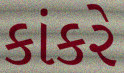
કાંકરે